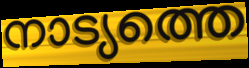
നാട്യത്തെ